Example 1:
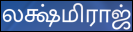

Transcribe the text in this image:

லக்ஷ்மிராஜ்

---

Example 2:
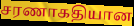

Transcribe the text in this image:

சரணாகதியான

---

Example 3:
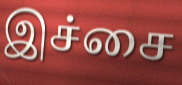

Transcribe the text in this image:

இச்சை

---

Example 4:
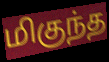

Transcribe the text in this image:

மிகுந்த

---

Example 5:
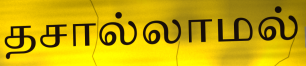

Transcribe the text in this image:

தசால்லாமல்